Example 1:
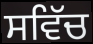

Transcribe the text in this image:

ਸਵਿੱਚ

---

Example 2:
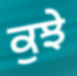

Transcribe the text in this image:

ਕੁਝੇ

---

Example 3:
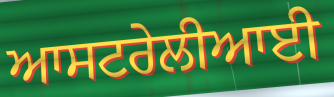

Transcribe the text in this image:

ਆਸਟਰੇਲੀਆਈ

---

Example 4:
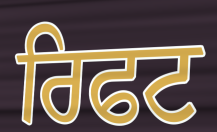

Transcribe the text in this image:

ਰਿਫਟ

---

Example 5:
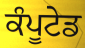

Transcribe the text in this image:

ਕੰਪੂਟੇਡ